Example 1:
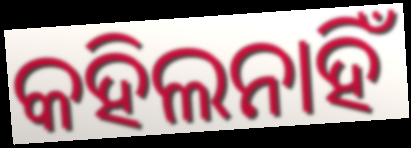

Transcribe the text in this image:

କହିଲନାହିଁ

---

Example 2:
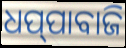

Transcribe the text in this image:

ଧପ୍‌ପାବାଜି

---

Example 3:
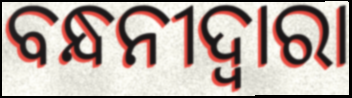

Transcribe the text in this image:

ବନ୍ଧନୀଦ୍ୱାରା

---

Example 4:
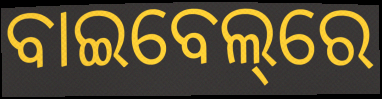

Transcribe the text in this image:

ବାଇବେଲ୍‌ରେ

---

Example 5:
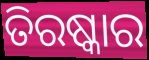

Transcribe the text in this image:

ତିରଷ୍କାର